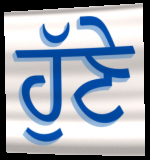
ਹੁੱਣੇ